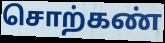
சொற்கண்